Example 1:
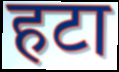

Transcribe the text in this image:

हटा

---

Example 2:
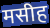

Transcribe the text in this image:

मसीह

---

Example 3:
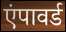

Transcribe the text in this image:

एंपावर्ड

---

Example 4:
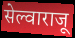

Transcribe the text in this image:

सेल्वाराजू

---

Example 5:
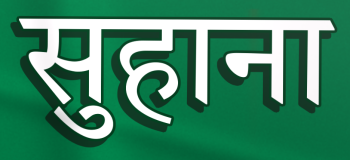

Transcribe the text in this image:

सुहाना